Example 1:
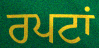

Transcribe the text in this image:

ਰਪਟਾਂ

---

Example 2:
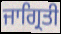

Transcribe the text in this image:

ਜਾਗ੍ਰਿਤੀ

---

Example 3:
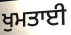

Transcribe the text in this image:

ਖੁਮਤਾਈ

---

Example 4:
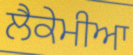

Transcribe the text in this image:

ਲੈਕੇਮੀਆ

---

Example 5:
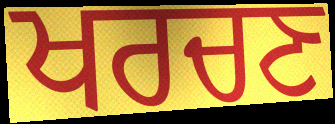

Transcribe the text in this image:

ਖਰਚਣ